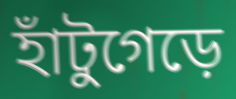
হাঁটুগেড়ে